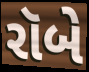
રૉબે